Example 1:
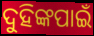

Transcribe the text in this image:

ଦୁହିଙ୍କପାଇଁ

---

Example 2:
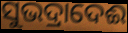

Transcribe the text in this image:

ସୁଭଦ୍ରାଦେଈ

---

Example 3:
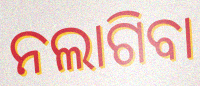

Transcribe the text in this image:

ନଲାଗିବା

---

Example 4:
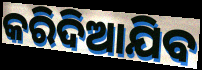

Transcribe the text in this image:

କରିଦିଆଯିବ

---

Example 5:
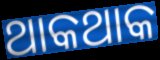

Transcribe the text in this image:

ଥାକଥାକ